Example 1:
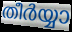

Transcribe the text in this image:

തീർയ്യാ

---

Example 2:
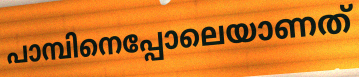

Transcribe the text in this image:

പാമ്പിനെപ്പോലെയാണത്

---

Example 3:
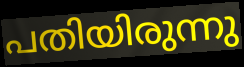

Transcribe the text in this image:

പതിയിരുന്നു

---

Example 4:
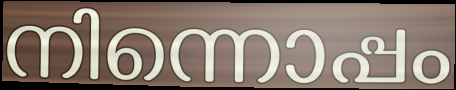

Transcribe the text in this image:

നിന്നൊപ്പം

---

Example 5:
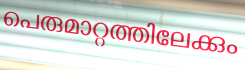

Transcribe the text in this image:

പെരുമാറ്റത്തിലേക്കും